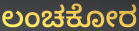
ಲಂಚಕೋರ